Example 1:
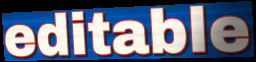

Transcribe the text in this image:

editable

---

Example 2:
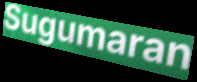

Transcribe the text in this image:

Sugumaran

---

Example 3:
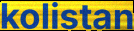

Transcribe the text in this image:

kolistan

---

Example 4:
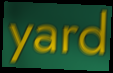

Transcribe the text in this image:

yard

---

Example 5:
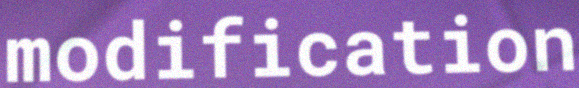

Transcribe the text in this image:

modification